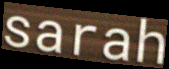
sarah